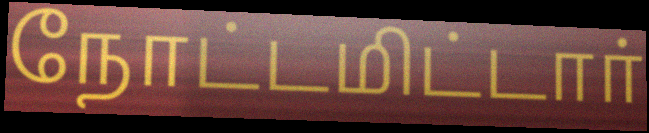
நோட்டமிட்டார்